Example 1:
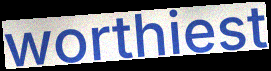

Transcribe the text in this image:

worthiest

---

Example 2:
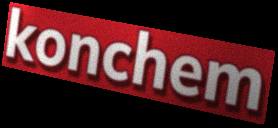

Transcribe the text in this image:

konchem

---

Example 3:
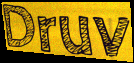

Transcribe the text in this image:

Druv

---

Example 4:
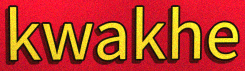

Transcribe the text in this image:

kwakhe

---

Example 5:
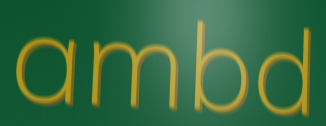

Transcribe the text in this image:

ambd